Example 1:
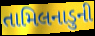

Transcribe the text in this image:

તામિલનાડુની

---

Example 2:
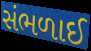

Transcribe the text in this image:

સંભળાઈ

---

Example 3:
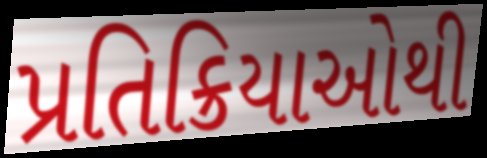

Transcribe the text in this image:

પ્રતિક્રિયાઓથી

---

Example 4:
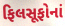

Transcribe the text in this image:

ફિલસૂફોનાં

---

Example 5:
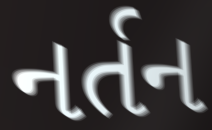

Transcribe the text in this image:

નર્તન